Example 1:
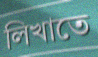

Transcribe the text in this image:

লিখাতে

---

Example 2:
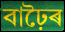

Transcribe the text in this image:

বাঢ়ৈৰ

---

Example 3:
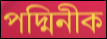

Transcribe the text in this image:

পদ্মিনীক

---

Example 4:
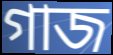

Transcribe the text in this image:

গাজ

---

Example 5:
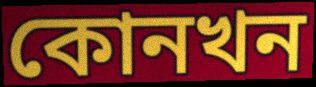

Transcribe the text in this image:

কোনখন